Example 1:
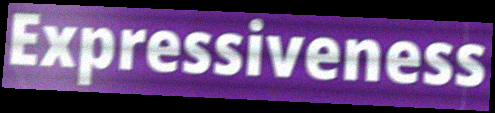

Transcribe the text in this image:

Expressiveness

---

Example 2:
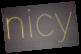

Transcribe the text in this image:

nicy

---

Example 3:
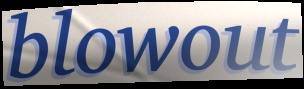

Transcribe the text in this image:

blowout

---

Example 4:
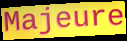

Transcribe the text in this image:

Majeure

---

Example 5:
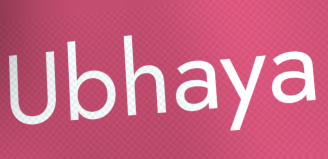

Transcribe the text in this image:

Ubhaya